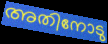
അതിനോടു